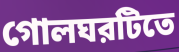
গোলঘরটিতে